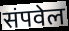
संपवेल